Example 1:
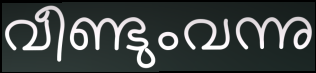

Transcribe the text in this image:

വീണ്ടുംവന്നു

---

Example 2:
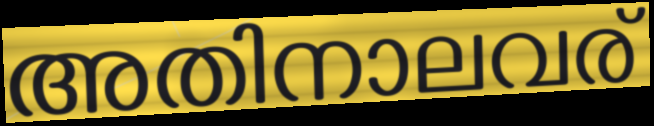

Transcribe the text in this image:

അതിനാലവര്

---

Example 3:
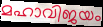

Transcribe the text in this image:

മഹാവിജയം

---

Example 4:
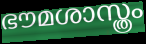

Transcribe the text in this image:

ഭൗമശാസ്ത്രം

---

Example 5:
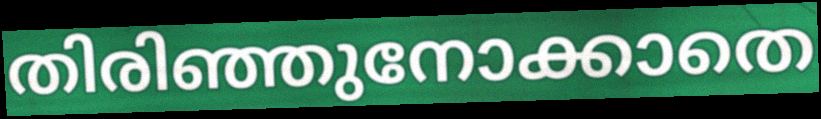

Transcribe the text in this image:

തിരിഞ്ഞുനോക്കാതെ